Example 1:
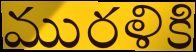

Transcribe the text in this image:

మురళికి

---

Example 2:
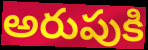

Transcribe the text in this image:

అరుపుకి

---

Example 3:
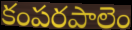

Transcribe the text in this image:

కంపరపాలెం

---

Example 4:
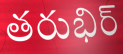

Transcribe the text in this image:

తరుభిర్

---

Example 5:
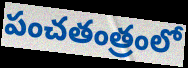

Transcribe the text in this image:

పంచతంత్రంలో